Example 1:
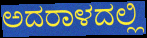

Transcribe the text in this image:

ಅದರಾಳದಲ್ಲಿ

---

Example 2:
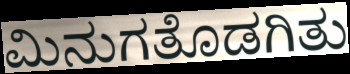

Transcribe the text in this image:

ಮಿನುಗತೊಡಗಿತು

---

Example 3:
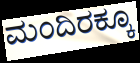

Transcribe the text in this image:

ಮಂದಿರಕ್ಕೂ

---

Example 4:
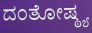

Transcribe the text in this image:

ದಂತೋಷ್ಠ್ಯ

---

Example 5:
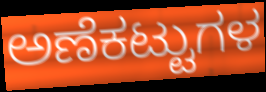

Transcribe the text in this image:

ಅಣೆಕಟ್ಟುಗಳ